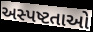
અસ્પષ્ટતાઓ